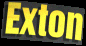
Exton